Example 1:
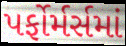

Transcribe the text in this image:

પર્ફોર્મર્સમાં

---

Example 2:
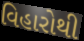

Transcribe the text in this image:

વિહારોથી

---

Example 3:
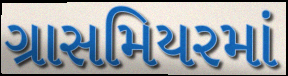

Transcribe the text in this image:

ગ્રાસમિયરમાં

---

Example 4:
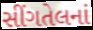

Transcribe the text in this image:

સીંગતેલનાં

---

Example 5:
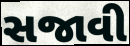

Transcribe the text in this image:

સજાવી